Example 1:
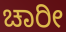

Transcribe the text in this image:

ಚಾರೀ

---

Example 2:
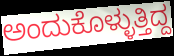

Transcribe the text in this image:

ಅಂದುಕೊಳ್ಳುತ್ತಿದ್ದ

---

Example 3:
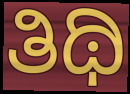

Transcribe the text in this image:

ತಿಥಿ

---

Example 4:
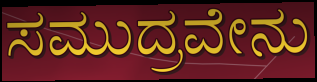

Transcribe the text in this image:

ಸಮುದ್ರವೇನು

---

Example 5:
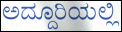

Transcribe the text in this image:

ಅದ್ದೂರಿಯಲ್ಲಿ